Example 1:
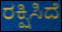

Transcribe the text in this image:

ರಕ್ಷಿಸಿದೆ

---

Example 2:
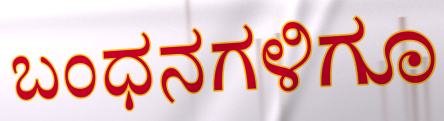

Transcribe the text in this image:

ಬಂಧನಗಳಿಗೂ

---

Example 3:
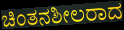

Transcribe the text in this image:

ಚಿಂತನಶೀಲರಾದ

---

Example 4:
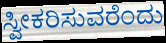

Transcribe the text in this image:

ಸ್ವೀಕರಿಸುವರೆಂದು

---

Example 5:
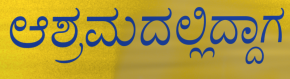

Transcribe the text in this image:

ಆಶ್ರಮದಲ್ಲಿದ್ದಾಗ